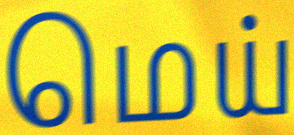
மெய்